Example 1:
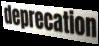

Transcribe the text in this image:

deprecation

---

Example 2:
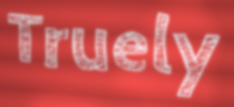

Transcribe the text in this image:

Truely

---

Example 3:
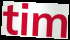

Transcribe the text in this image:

tim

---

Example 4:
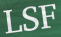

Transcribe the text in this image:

LSF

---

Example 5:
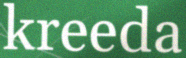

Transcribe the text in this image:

kreeda